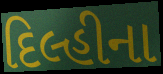
દિલ્હીના